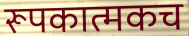
रूपकात्मकच